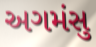
અગમંસુ